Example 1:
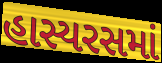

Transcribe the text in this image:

હાસ્યરસમાં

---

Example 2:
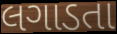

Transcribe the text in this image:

લગાડતા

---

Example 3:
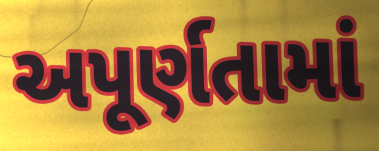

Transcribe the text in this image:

અપૂર્ણતામાં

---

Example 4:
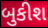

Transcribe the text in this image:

બુકીશ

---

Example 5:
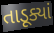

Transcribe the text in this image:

તાડૂક્યાં